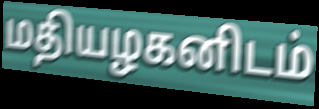
மதியழகனிடம்